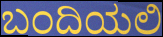
ಬಂದಿಯಲಿ